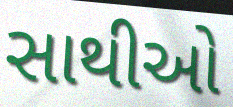
સાથીઓ